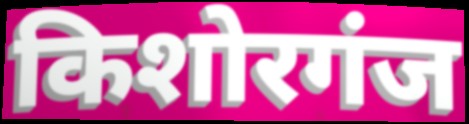
किशोरगंज